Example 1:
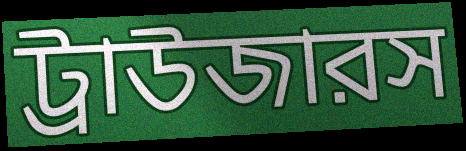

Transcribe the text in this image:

ট্রাউজারস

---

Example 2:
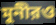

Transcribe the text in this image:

মুনীরও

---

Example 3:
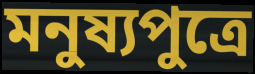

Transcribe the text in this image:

মনুষ্যপুত্রে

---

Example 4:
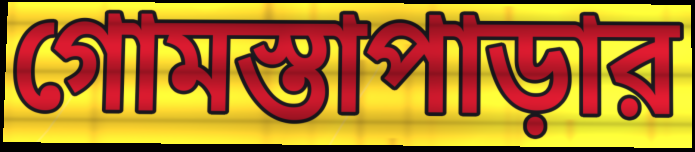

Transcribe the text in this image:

গোমস্তাপাড়ার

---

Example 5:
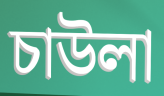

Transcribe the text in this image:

চাউলা